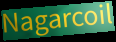
Nagarcoil